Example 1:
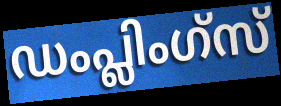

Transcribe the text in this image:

ഡംപ്ലിംഗ്സ്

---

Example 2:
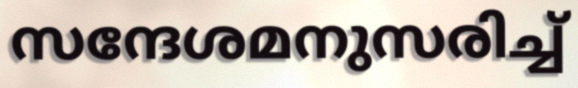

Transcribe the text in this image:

സന്ദേശമനുസരിച്ച്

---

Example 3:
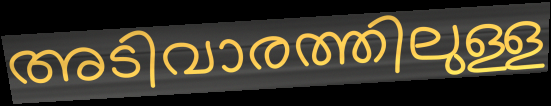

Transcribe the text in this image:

അടിവാരത്തിലുള്ള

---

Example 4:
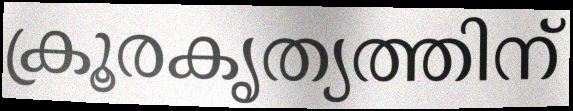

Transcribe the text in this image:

ക്രൂരകൃത്യത്തിന്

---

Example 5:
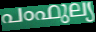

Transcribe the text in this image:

പംഫുല്യ